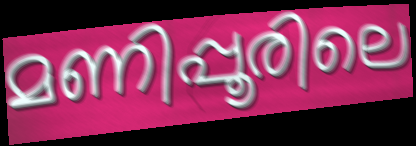
മണിപ്പൂരിലെ